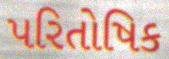
પરિતોષિક